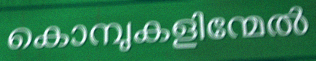
കൊമ്പുകളിന്മേൽ